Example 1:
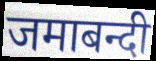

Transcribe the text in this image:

जमाबन्दी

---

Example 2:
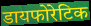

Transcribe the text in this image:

डायफोरेटिक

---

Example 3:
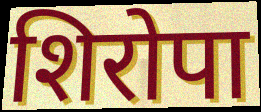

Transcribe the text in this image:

शिरोपा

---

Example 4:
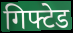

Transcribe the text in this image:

गिफ्टेड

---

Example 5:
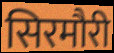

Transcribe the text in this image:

सिरमौरी